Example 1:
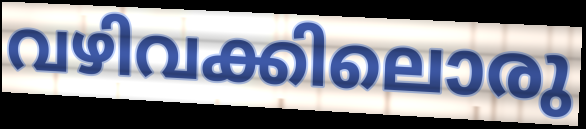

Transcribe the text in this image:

വഴിവക്കിലൊരു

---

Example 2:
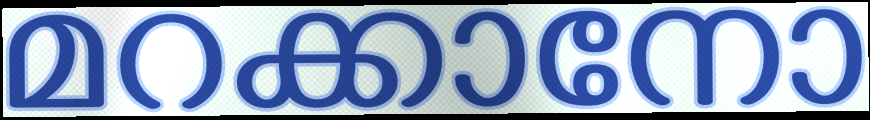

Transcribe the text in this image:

മറക്കാനോ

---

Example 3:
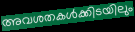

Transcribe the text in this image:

അവശതകൾക്കിടയിലും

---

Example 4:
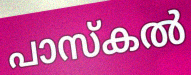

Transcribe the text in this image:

പാസ്കൽ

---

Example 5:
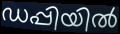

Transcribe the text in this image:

ഡപ്പിയിൽ